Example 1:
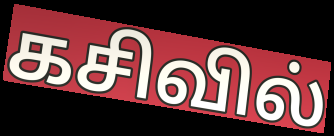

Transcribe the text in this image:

கசிவில்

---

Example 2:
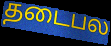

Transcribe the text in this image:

தடைபல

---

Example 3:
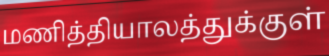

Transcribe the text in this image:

மணித்தியாலத்துக்குள்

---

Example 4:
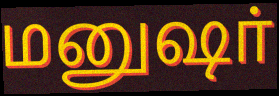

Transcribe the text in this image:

மனுஷர்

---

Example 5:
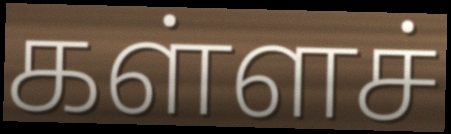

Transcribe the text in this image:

கள்ளச்